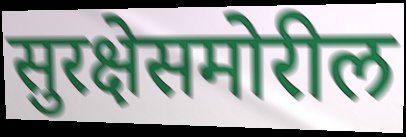
सुरक्षेसमोरील